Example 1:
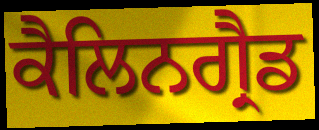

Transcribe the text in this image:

ਕੈਲਿਨਗ੍ਰੈਡ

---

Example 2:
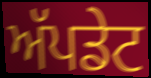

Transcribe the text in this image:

ਅੱਪਡੇਟ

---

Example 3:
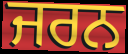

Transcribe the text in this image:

ਜਰਨ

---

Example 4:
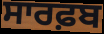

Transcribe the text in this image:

ਸਾਰਫ਼ਬ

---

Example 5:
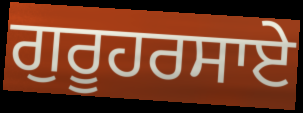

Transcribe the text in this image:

ਗੁਰੂਹਰਸਾਏ